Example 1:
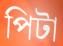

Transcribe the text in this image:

পিটা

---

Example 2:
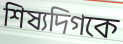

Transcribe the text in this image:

শিষ্যদিগকে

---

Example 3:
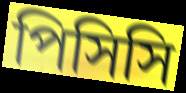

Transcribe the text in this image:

পিসিসি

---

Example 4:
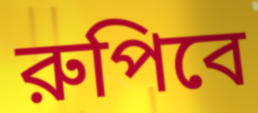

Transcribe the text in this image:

রুপিবে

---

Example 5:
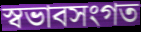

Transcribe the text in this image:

স্বভাবসংগত